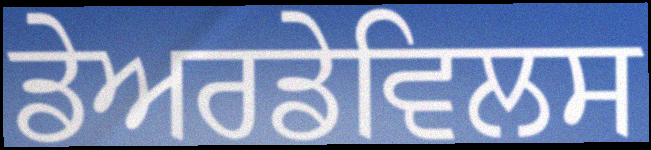
ਡੇਅਰਡੇਵਿਲਸ